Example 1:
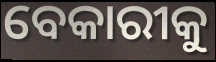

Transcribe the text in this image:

ବେକାରୀକୁ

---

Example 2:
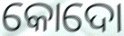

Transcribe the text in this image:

କୋଦୋ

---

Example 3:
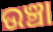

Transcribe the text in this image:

ଉଞ୍ଚା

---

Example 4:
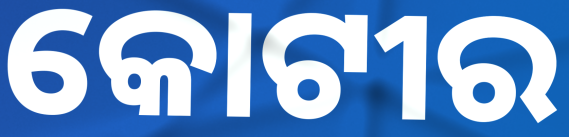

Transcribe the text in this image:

କୋଟୀର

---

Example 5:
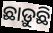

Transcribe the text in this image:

ଛାଡ଼ୁଛି